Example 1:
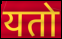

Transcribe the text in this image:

यतो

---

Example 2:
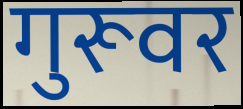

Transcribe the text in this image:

गुरूवर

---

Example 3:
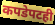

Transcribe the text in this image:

कपडेपटही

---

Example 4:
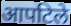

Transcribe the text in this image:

आपटिले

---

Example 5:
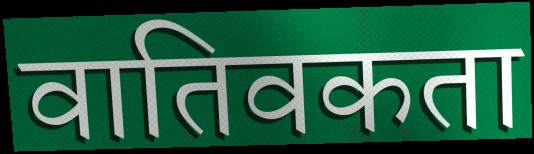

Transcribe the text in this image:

वातिवकता